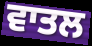
ਵਾਤਲ